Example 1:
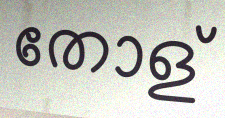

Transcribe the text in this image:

തോള്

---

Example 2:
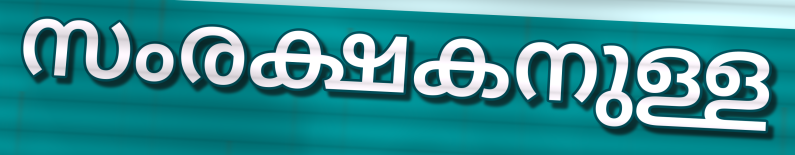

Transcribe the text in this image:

സംരക്ഷകനുള്ള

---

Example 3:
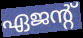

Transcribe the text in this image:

ഏജന്റ്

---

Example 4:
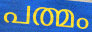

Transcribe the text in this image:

പത്മം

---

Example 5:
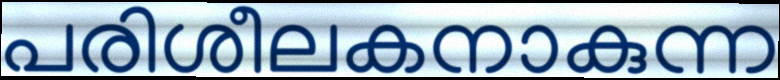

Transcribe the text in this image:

പരിശീലകനാകുന്ന